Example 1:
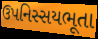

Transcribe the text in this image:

ઉપનિસ્સયભૂતા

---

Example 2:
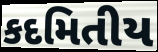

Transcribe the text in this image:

કદમિતીય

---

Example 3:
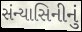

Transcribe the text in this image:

સંન્યાસિનીનું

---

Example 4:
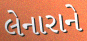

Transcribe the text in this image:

લેનારાને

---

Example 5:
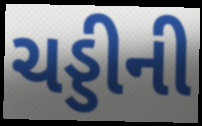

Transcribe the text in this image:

ચડ્ડીની